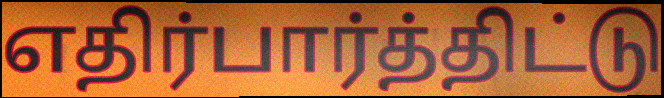
எதிர்பார்த்திட்டு